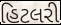
હિટલરી